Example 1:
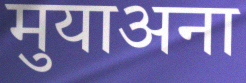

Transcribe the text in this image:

मुयाअना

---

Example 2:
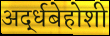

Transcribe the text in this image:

अर्द्धबेहोशी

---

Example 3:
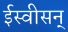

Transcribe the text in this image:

ईस्वीसन्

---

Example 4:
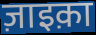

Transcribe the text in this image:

ज़ाइक़ा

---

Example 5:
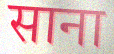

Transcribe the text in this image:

साना